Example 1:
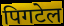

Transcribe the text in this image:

पिगटेल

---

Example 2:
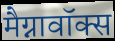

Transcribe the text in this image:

मैग्नावॉक्स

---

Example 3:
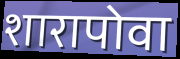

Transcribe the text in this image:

शारापोवा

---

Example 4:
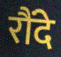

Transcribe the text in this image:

रौंदे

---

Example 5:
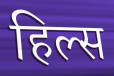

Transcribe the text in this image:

हिल्स